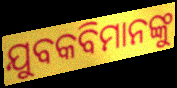
ଯୁବକବିମାନଙ୍କୁ